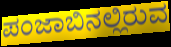
ಪಂಜಾಬಿನಲ್ಲಿರುವ